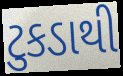
ટુકડાથી